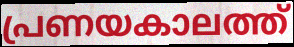
പ്രണയകാലത്ത്